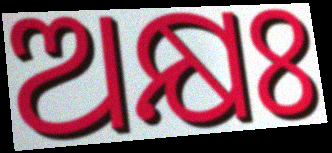
ଅକ୍ଷଃ